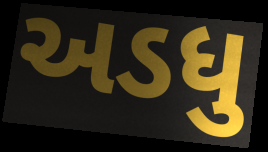
અડધુ